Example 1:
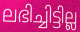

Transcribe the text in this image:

ലഭിച്ചിട്ടില്ല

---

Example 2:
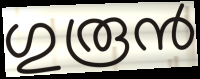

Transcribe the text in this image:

ഗുരൂൻ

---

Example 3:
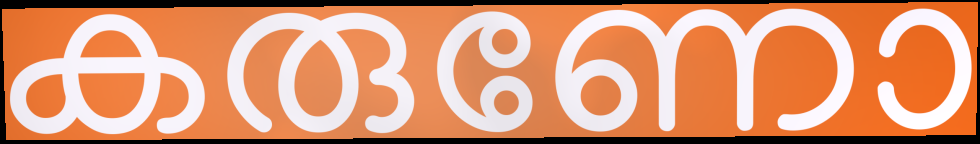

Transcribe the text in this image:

കരുണോ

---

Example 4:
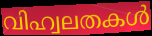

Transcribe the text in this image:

വിഹ്വലതകൾ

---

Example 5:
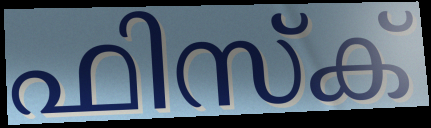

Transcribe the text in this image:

ഫിസ്ക്